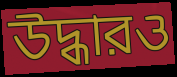
উদ্ধারও